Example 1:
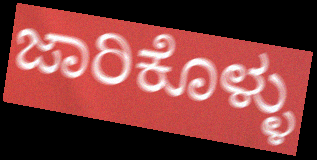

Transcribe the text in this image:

ಜಾರಿಕೊಳ್ಳು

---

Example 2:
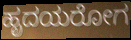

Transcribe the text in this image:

ಹೃದಯರೋಗ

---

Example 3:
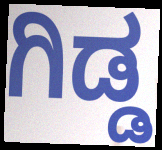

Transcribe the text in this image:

ಗಿಡ್ಡ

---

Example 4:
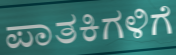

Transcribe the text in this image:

ಪಾತಕಿಗಳಿಗೆ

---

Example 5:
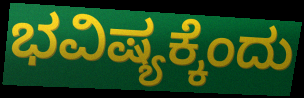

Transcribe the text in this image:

ಭವಿಷ್ಯಕ್ಕೆಂದು